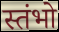
स्तंभो